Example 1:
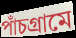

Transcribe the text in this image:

পাঁচগ্রামে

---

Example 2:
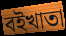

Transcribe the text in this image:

বইখাতা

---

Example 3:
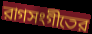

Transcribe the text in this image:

রাগসংগীতের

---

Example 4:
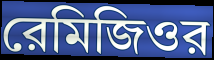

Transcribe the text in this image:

রেমিজিওর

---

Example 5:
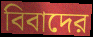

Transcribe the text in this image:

বিবাদের